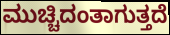
ಮುಚ್ಚಿದಂತಾಗುತ್ತದೆ